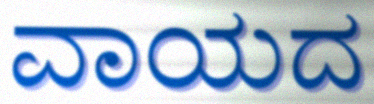
ವಾಯದ